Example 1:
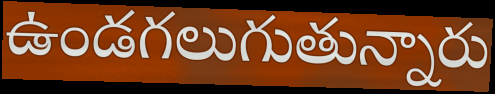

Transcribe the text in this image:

ఉండగలుగుతున్నారు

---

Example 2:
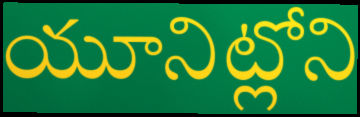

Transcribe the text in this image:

యూనిట్లోని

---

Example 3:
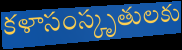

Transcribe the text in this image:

కళాసంస్కృతులకు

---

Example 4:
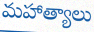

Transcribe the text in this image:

మహాత్యాలు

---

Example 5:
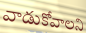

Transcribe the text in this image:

వాడుకోవాలని